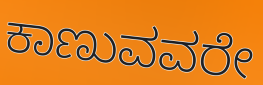
ಕಾಣುವವರೇ